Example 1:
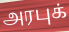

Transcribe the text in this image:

அரபுக்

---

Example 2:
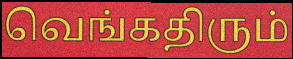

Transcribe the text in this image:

வெங்கதிரும்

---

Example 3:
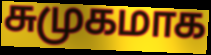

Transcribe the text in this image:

சுமுகமாக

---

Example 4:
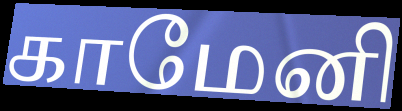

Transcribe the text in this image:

காமேனி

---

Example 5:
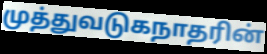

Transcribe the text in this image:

முத்துவடுகநாதரின்